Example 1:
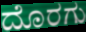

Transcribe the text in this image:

ದೊರಗು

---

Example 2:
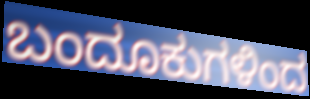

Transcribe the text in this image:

ಬಂದೂಕುಗಳಿಂದ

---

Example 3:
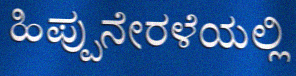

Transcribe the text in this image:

ಹಿಪ್ಪುನೇರಳೆಯಲ್ಲಿ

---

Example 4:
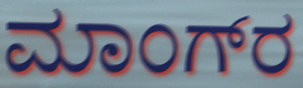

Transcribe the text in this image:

ಮಾಂಗ್‌ರ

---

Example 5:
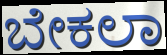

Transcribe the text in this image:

ಬೇಕಲಾ